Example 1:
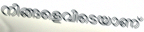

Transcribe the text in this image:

നിങ്ങളെവിടെയാണ്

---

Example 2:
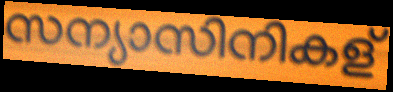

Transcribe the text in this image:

സന്യാസിനികള്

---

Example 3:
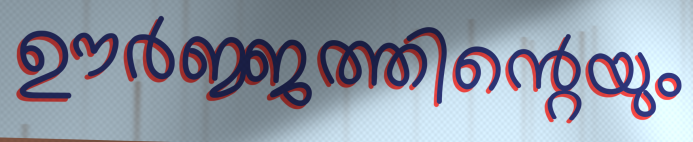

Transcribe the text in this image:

ഊർജ്ജത്തിന്റെയും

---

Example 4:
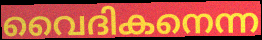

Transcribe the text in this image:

വൈദികനെന്ന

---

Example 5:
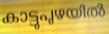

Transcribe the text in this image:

കാട്ടുപുഴയിൽ